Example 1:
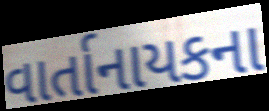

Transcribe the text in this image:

વાર્તાનાયકના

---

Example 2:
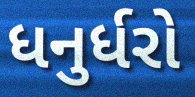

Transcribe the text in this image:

ધનુર્ધરો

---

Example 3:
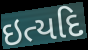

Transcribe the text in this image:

ઇત્યદિ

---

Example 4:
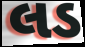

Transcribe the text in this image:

લડ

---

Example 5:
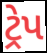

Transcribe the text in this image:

ટ્રેપ